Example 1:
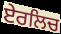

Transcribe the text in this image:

ਏਰਲਿਚ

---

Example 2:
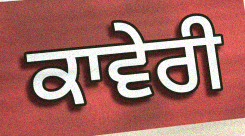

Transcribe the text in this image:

ਕਾਵੇਰੀ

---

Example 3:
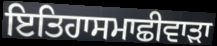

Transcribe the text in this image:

ਇਤਿਹਾਸਮਾਛੀਵਾੜਾ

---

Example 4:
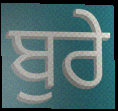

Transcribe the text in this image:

ਬੁਰੇ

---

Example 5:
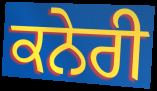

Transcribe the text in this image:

ਕਨੇਰੀ